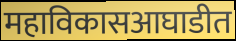
महाविकासआघाडीत